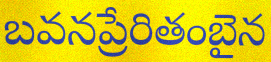
బవనప్రేరితంబైన